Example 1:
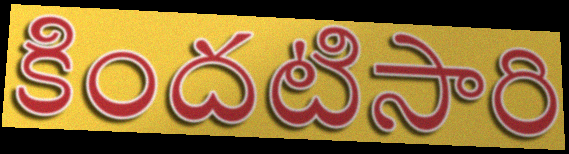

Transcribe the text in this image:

కిందటిసారి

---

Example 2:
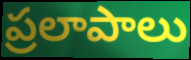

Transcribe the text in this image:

ప్రలాపాలు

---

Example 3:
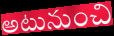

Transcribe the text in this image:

అటునుంచి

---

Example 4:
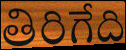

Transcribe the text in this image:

తిరిగేది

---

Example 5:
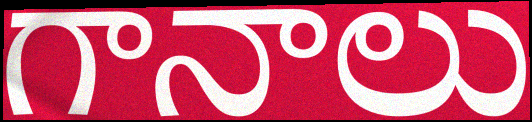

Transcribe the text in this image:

గానాలు